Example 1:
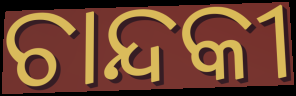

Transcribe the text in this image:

ଚାନ୍ଦକୀ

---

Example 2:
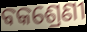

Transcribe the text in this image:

ବକଶ୍ରେଣୀ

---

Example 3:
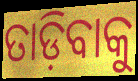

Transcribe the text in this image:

ତାଡ଼ିବାକୁ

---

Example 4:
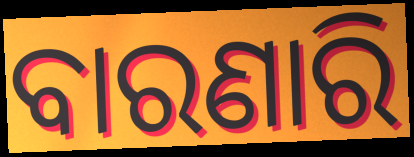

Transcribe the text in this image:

ବାରଣାରି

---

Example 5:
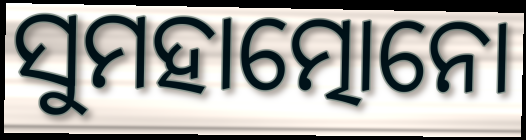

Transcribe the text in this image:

ସୁମହାତ୍ମୋନୋ